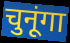
चुनूंगा